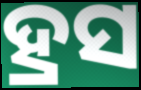
ହ୍ରସ